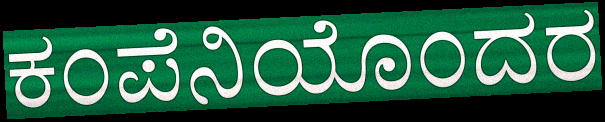
ಕಂಪೆನಿಯೊಂದರ